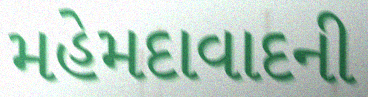
મહેમદાવાદની